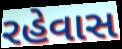
રહેવાસ